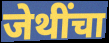
जेथींचा